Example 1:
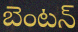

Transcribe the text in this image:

బెంటన్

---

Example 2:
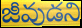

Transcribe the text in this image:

జీవుడని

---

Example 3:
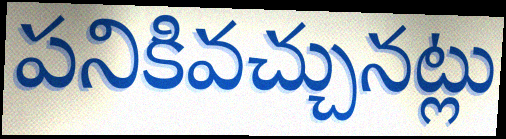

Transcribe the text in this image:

పనికివచ్చునట్లు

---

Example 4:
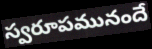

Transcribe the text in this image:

స్వరూపమునందే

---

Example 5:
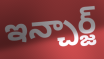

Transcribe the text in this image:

ఇన్చార్జ్